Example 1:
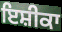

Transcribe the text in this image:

ਇਸ਼ੀਕਾ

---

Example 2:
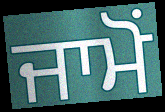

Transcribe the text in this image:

ਜਾਮੋਂ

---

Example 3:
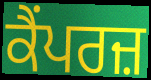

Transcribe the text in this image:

ਕੈਂਪਰਜ਼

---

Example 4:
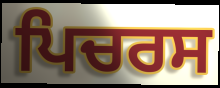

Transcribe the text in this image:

ਪਿਚਰਸ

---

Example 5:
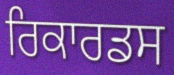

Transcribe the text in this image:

ਰਿਕਾਰਡਸ